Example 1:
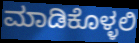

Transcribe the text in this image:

ಮಾಡಿಕೊಳ್ಳಲಿ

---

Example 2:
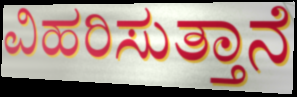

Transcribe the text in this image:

ವಿಹರಿಸುತ್ತಾನೆ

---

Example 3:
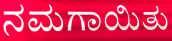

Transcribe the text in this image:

ನಮಗಾಯಿತು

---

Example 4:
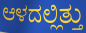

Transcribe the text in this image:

ಆಳದಲ್ಲಿತ್ತು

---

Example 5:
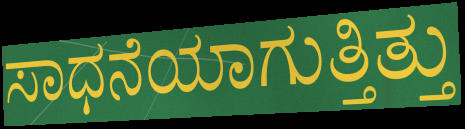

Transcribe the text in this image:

ಸಾಧನೆಯಾಗುತ್ತಿತ್ತು